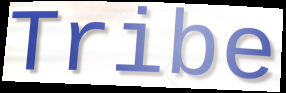
Tribe